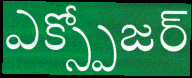
ఎక్స్పోజర్